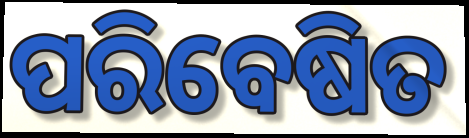
ପରିବେଷିତ